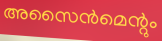
അസൈൻമെന്റും